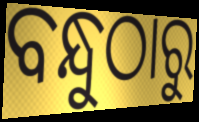
ବନ୍ଧୁଠାରୁ